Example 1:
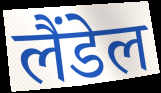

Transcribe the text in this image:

लैंडेल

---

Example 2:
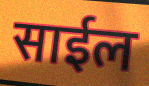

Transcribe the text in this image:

साईल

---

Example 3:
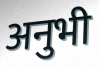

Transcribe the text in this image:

अनुभी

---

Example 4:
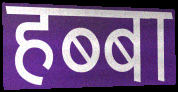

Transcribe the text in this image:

हब्‍बा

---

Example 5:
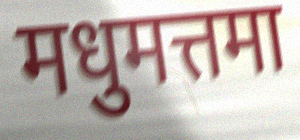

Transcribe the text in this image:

मधुमत्तमा